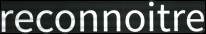
reconnoitre